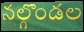
నల్గొండల